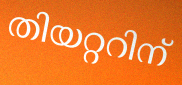
തിയറ്ററിന്